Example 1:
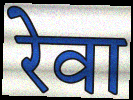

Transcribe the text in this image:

रेवा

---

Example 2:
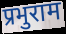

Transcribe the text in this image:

प्रभुराम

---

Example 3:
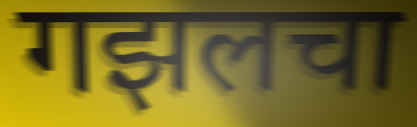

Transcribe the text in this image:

गझलचा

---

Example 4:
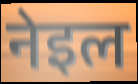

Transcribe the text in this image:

नेइल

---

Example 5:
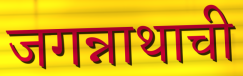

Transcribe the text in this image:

जगन्नाथाची